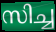
സിച്ച